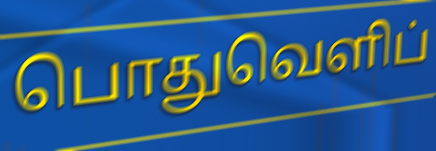
பொதுவெளிப்